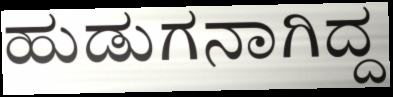
ಹುಡುಗನಾಗಿದ್ದ